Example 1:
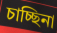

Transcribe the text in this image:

চাচ্ছিনা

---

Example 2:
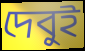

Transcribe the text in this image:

দেবুই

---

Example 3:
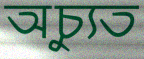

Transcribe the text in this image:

অচ্যুত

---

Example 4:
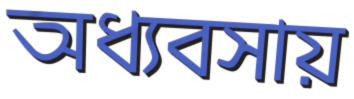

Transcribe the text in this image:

অধ্যবসায়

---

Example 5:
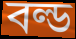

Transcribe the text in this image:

বল্ড